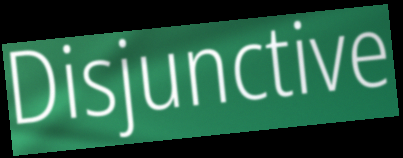
Disjunctive